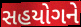
સહયોગને